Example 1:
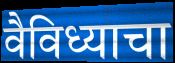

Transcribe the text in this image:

वैविध्याचा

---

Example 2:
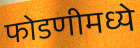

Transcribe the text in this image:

फोडणीमध्ये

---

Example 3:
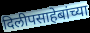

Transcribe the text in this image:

दिलीपसाहेबांच्या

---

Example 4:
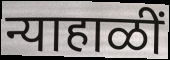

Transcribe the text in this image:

न्याहाळीं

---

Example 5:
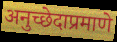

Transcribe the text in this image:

अनुच्छेदाप्रमाणे